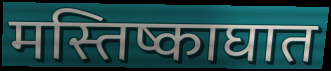
मस्तिष्काघात